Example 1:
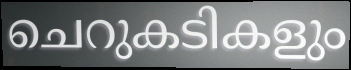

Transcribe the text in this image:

ചെറുകടികളും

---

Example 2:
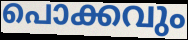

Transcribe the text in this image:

പൊക്കവും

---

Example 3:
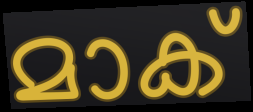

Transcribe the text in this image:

മാക്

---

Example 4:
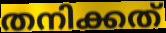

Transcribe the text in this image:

തനിക്കത്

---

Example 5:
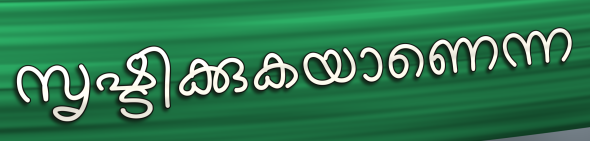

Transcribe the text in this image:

സൃഷ്ടിക്കുകയാണെന്ന